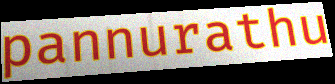
pannurathu